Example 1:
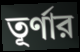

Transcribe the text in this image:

তূর্ণার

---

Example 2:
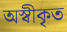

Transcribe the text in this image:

অস্বীকৃত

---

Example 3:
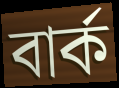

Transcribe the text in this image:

বার্ক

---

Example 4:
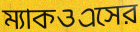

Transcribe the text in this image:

ম্যাকওএসের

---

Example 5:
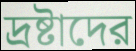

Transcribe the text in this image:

দ্রষ্টাদের